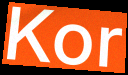
Kor